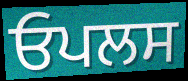
ਓਪਲਸ